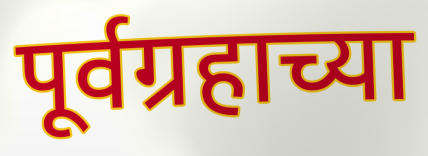
पूर्वग्रहाच्या